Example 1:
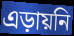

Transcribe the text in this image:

এড়ায়নি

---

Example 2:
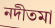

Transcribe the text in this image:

নদীতমা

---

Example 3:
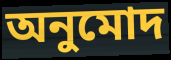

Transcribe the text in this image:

অনুমোদ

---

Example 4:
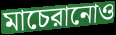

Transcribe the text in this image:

মাচেরানোও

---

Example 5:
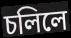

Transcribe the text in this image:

চলিলে